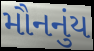
મૌનનુંય